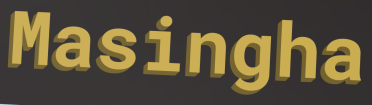
Masingha